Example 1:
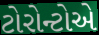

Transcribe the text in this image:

ટોરોન્ટોએ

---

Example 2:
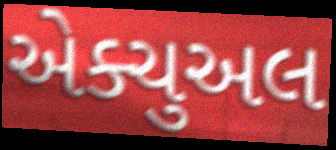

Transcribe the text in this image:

એક્ચુઅલ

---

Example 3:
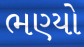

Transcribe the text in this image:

ભણ્યો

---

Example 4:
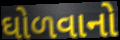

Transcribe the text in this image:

ઘોળવાનો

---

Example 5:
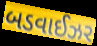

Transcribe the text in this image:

બડવાઈઝર